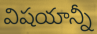
విషయాన్నీ